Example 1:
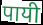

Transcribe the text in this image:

पायी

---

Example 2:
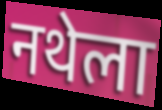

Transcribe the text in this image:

नथेला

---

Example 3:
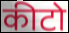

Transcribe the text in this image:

कीटो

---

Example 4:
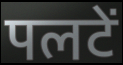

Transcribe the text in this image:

पलटें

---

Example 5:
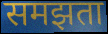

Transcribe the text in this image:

समझता